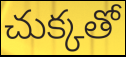
చుక్కతో